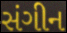
સંગીન